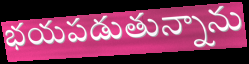
భయపడుతున్నాను